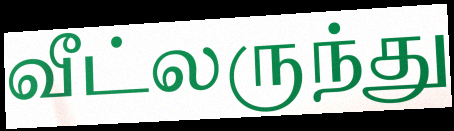
வீட்லருந்து